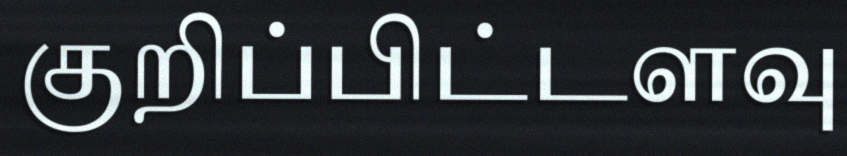
குறிப்பிட்டளவு